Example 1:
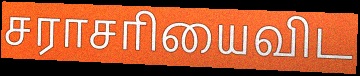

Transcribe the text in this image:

சராசரியைவிட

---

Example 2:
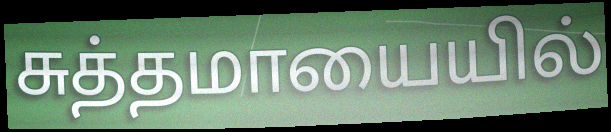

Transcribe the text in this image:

சுத்தமாயையில்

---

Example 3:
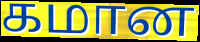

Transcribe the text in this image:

கமான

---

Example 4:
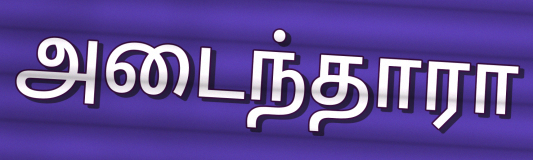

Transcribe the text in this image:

அடைந்தாரா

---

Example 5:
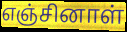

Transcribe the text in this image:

எஞ்சினாள்